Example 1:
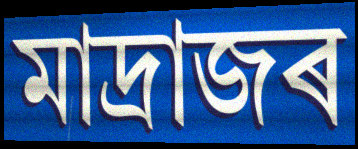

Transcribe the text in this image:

মাদ্ৰাজৰ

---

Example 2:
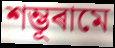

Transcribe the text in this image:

শম্ভূৰামে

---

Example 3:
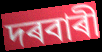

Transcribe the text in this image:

দৰবাৰী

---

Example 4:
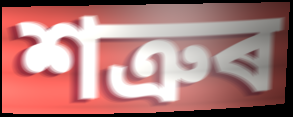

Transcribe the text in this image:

শত্ৰুৰ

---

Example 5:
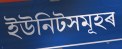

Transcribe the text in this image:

ইউনিটসমূহৰ